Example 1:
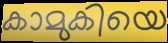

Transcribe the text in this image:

കാമുകിയെ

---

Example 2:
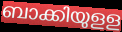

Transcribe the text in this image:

ബാക്കിയുളള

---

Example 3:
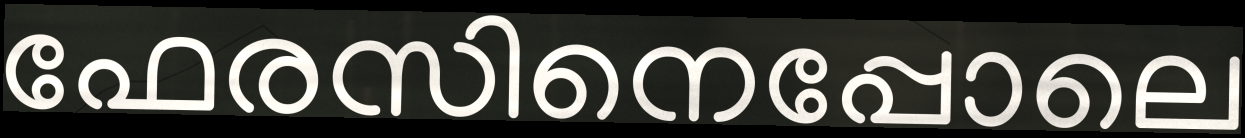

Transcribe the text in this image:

ഫേരസിനെപ്പോലെ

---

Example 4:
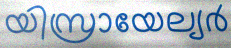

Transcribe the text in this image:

യിസ്രായേല്യർ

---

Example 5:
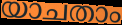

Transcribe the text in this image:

യാചതാം